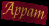
Appam